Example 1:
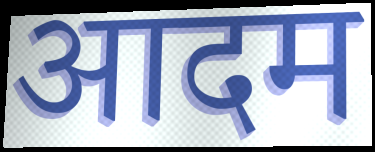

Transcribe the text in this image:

आदम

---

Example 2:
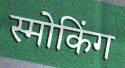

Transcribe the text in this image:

स्‍मोकिंग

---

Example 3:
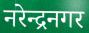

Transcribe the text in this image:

नरेन्द्रनगर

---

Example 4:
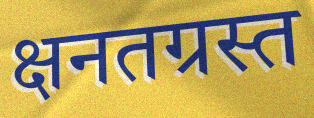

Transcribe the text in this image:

क्षनतग्रस्त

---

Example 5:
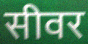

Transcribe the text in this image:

सीवर